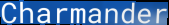
Charmander